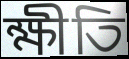
ক্ষীতি